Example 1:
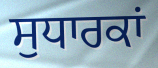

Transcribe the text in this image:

ਸੁਧਾਰਕਾਂ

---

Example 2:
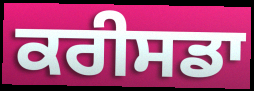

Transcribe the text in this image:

ਕਰੀਸਡਾ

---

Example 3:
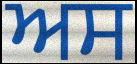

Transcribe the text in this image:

ਅਸ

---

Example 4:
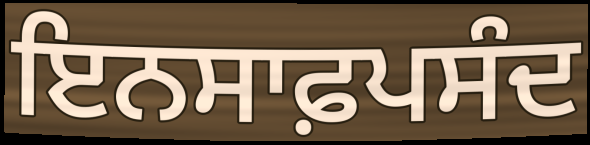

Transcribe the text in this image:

ਇਨਸਾਫ਼ਪਸੰਦ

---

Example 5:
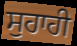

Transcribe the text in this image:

ਸੁਹਾਹੀ